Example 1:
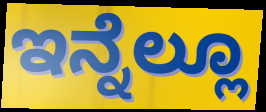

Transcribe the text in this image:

ಇನ್ನೆಲ್ಲೂ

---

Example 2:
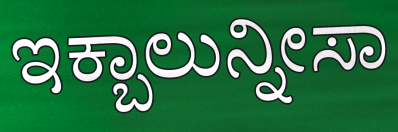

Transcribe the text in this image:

ಇಕ್ಬಾಲುನ್ನೀಸಾ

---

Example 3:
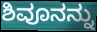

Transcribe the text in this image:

ಶಿವೂನನ್ನು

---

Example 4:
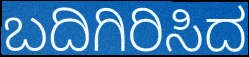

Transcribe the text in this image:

ಬದಿಗಿರಿಸಿದ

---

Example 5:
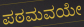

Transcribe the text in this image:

ಪಠಮವಯೇ